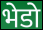
भेडो